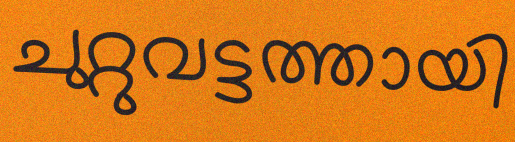
ചുറ്റുവട്ടത്തായി